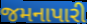
જમનાપારી